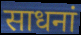
साधनां